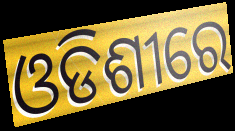
ଓଡିଶୀରେ